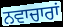
ਨਵਾਚਾਰਾਂ